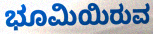
ಭೂಮಿಯಿರುವ